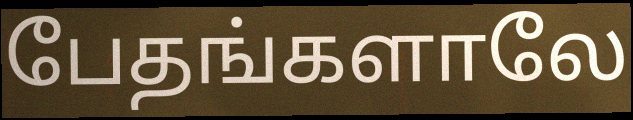
பேதங்களாலே